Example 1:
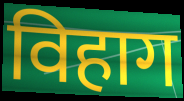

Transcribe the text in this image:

विहाग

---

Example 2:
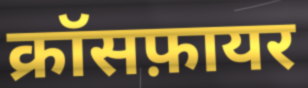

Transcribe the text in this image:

क्रॉसफ़ायर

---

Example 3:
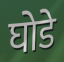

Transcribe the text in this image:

घोडे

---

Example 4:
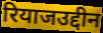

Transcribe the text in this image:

रियाजउद्दीन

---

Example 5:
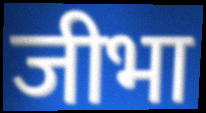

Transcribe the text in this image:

जीभा